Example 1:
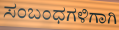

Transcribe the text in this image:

ಸಂಬಂಧಗಳಿಗಾಗಿ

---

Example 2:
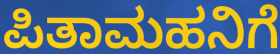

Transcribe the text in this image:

ಪಿತಾಮಹನಿಗೆ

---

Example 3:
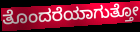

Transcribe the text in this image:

ತೊಂದರೆಯಾಗುತ್ತೋ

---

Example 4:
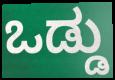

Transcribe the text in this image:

ಒಡ್ಡು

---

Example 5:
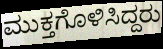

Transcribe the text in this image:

ಮುಕ್ತಗೊಳಿಸಿದ್ದರು